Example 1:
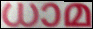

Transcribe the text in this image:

ധാമ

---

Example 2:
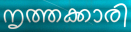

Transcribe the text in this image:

നൃത്തക്കാരി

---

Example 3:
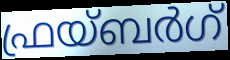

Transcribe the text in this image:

ഫ്രയ്ബർഗ്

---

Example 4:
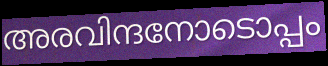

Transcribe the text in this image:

അരവിന്ദനോടൊപ്പം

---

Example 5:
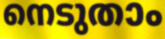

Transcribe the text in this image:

നെടുതാം